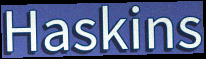
Haskins